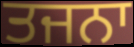
ਤਜਨਾ